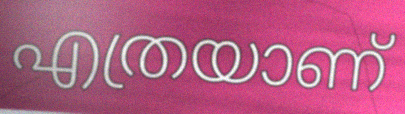
എത്രയാണ്